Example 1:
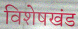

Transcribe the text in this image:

विशेषखंड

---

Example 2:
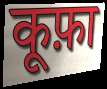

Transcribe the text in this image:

कूफ़ा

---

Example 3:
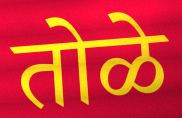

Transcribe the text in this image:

तोळे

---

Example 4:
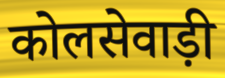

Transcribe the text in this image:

कोलसेवाड़ी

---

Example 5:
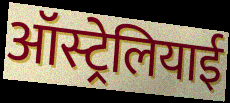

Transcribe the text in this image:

ऑस्‍ट्रेलियाई